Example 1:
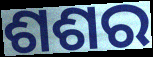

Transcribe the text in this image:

ଶଶର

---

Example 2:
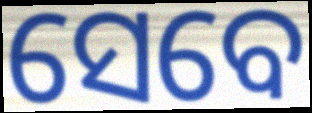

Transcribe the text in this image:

ସେବେ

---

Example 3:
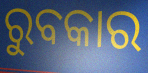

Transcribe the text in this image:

ରୁବକାର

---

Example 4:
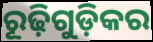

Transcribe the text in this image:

ରୂଢ଼ିଗୁଡ଼ିକର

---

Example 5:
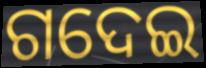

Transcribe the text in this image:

ଗଦେଇ